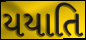
યયાતિ